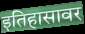
इतिहासावर